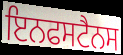
ਇਨਫਸਟੈਨਸ